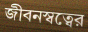
জীবনস্বত্বের